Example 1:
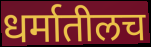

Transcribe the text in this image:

धर्मातीलच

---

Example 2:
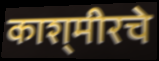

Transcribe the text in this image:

काश्मीरचे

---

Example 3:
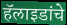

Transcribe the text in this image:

हॅलाइडांचे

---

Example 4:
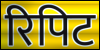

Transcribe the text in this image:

रिपिट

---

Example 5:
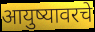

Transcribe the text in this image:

आयुष्यावरचे